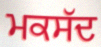
ਮਕਸੱਦ